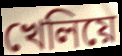
খেলিয়ে